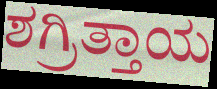
ಶಗ್ರಿತ್ತಾಯ